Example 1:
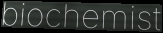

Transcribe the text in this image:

biochemist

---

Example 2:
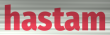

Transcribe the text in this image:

hastam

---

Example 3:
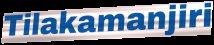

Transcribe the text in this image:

Tilakamanjiri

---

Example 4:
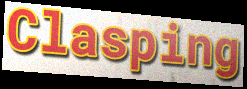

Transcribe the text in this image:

Clasping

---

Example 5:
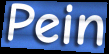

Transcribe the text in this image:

Pein